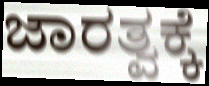
ಜಾರತ್ವಕ್ಕೆ